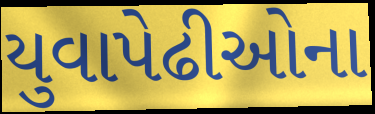
યુવાપેઢીઓના